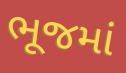
ભૂજમાં